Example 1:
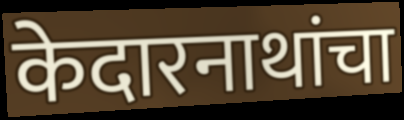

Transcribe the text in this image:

केदारनाथांचा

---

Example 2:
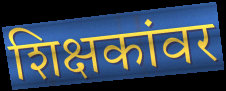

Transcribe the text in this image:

शिक्षकांवर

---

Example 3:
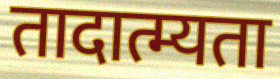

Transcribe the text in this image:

तादात्म्यता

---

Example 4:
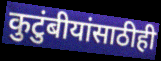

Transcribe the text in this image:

कुटुंबीयांसाठीही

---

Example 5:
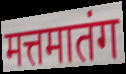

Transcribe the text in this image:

मत्तमातंग